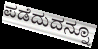
ಪಡೆದುದನ್ನೂ